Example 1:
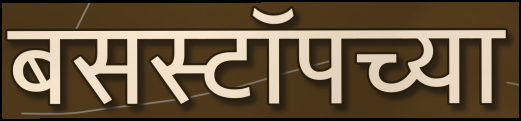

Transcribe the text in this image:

बसस्टॉपच्या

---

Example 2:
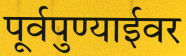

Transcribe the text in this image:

पूर्वपुण्याईवर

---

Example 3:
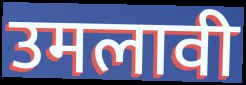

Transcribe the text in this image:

उमलावी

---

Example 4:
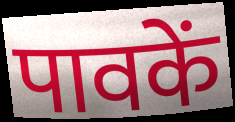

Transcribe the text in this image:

पावकें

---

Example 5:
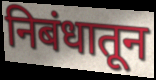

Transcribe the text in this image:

निबंधातून